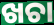
ଖଚା